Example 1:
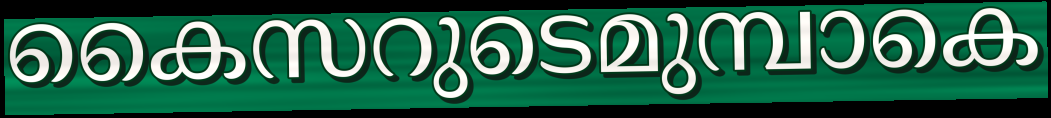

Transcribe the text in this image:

കൈസറുടെമുമ്പാകെ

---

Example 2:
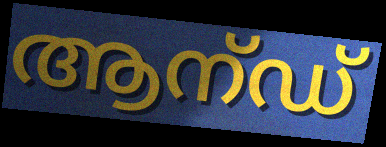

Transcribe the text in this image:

ആന്ഡ്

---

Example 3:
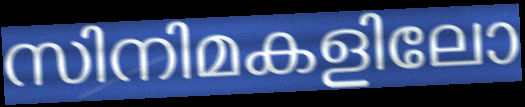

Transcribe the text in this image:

സിനിമകളിലോ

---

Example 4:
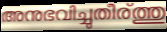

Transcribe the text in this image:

അനുഭവിച്ചുതീര്ത്തു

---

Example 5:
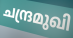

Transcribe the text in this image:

ചന്ദ്രമുഖി